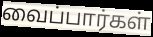
வைப்பார்கள்